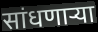
सांधणार्‍या